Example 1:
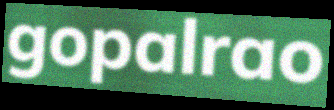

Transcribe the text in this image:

gopalrao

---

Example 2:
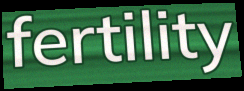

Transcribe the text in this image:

fertility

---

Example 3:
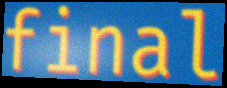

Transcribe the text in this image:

final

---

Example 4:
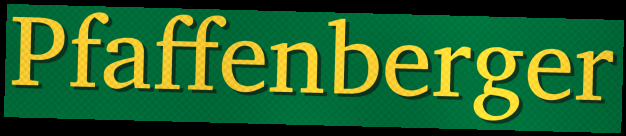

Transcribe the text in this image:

Pfaffenberger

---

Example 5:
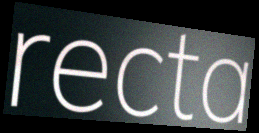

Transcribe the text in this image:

recta